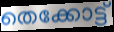
തെക്കോട്ട്